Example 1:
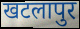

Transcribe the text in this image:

खटलापुर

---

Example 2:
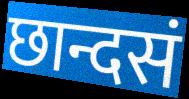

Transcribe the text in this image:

छान्दसं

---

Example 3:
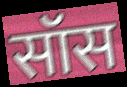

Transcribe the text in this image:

सॉस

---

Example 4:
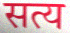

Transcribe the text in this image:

सत्य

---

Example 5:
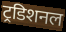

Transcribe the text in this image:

ट्रडिशनल